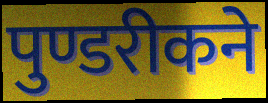
पुण्डरीकने